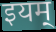
इयम्